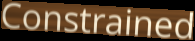
Constrained